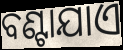
ବଣ୍ଟାଯାଏ